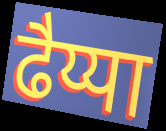
ढैय्या